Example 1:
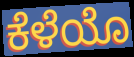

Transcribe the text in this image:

ಕೆಳೆಯೊ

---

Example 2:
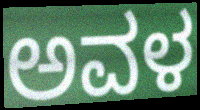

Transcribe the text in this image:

ಅವಳ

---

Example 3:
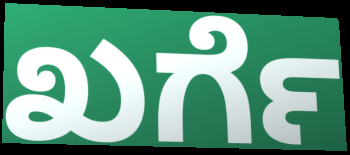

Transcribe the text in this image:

ಖರ್ಗೆ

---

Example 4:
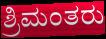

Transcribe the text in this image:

ಶ್ರಿಮಂತರು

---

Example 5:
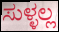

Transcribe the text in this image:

ಸುಳ್ಳಲ್ಲ